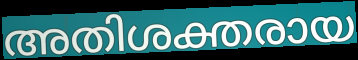
അതിശക്തരായ